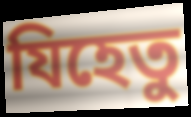
যিহেতু